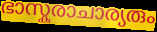
ഭാസ്കരാചാര്യരും